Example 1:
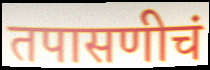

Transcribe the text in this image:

तपासणीचं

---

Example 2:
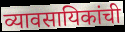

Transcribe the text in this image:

व्यावसायिकांची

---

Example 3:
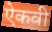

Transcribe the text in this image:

ऐकवी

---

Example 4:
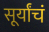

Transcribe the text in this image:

सूर्यांचं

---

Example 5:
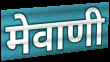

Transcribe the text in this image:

मेवाणी